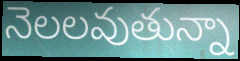
నెలలవుతున్నా